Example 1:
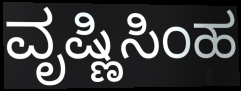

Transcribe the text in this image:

ವೃಷ್ಣಿಸಿಂಹ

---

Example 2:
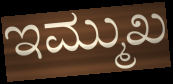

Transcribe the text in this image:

ಇಮ್ಮುಖ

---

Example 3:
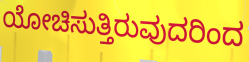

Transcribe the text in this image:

ಯೋಚಿಸುತ್ತಿರುವುದರಿಂದ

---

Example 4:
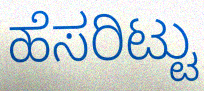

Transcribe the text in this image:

ಹೆಸರಿಟ್ಟು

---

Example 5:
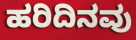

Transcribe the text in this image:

ಹರಿದಿನವು